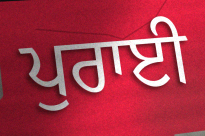
ਪੁਰਾਈ